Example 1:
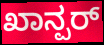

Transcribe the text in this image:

ಖಾನ್ಪರ್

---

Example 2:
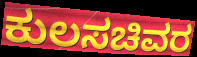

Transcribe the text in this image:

ಕುಲಸಚಿವರ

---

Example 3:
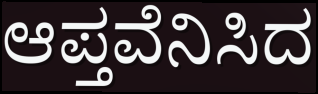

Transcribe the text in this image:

ಆಪ್ತವೆನಿಸಿದ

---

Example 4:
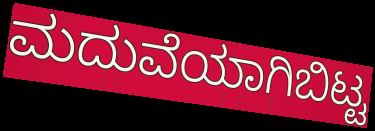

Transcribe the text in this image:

ಮದುವೆಯಾಗಿಬಿಟ್ಟ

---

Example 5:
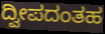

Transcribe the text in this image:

ದ್ವೀಪದಂತಹ